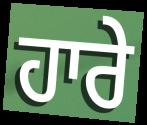
ਹਾਰੇ